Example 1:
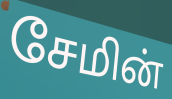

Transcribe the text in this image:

சேமின்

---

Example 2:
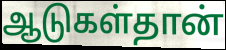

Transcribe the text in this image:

ஆடுகள்தான்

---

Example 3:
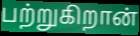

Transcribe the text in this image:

பற்றுகிறான்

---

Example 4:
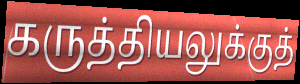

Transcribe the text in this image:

கருத்தியலுக்குத்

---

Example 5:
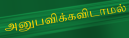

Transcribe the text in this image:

அனுபவிக்கவிடாமல்